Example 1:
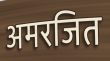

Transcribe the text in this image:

अमरजित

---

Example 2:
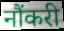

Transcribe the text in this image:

नौंकरी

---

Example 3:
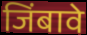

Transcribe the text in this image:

जिंबावे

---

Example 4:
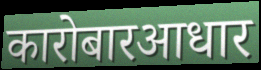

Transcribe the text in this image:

कारोबारआधार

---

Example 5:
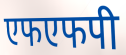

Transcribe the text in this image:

एफएफपी